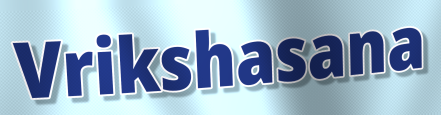
Vrikshasana